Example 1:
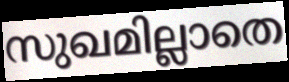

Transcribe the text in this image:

സുഖമില്ലാതെ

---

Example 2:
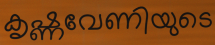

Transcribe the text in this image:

കൃഷ്ണവേണിയുടെ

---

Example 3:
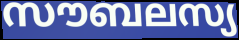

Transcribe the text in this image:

സൗബലസ്യ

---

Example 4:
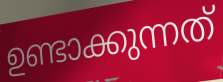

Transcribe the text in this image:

ഉണ്ടാക്കുന്നത്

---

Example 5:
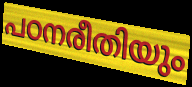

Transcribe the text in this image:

പഠനരീതിയും